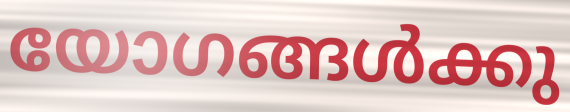
യോഗങ്ങൾക്കു